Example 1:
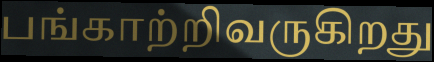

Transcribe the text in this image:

பங்காற்றிவருகிறது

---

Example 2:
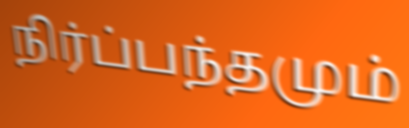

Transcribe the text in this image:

நிர்ப்பந்தமும்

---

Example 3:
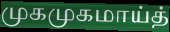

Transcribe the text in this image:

முகமுகமாய்த்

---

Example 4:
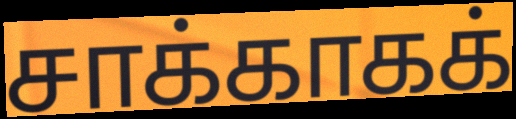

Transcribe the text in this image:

சாக்காகக்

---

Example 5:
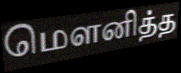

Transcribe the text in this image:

மௌனித்த